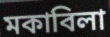
মকাবিলা